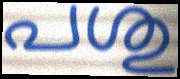
പശു